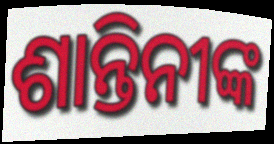
ଶାନ୍ତିନୀଙ୍କ